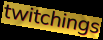
twitchings